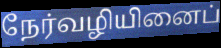
நேர்வழியினைப்